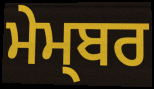
ਮੇਮ੍ਬਰ